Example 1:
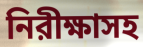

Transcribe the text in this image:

নিরীক্ষাসহ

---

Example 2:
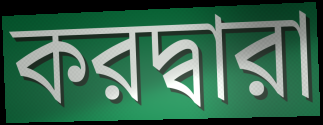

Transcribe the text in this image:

করদ্বারা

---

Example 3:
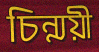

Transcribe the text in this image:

চিন্ময়ী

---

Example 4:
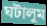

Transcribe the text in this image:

ঘটালুম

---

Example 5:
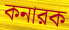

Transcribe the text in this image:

কনারক